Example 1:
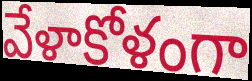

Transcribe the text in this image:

వేళాకోళంగా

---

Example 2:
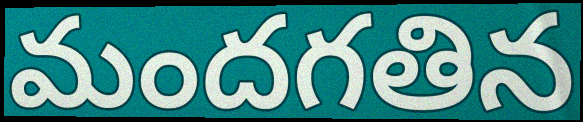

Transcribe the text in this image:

మందగతిన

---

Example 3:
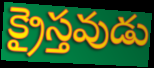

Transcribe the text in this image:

క్రైస్తవుడు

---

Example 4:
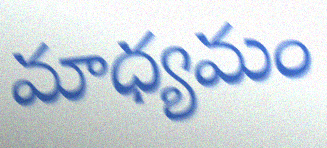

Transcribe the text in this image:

మాధ్యమం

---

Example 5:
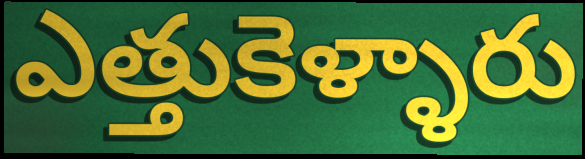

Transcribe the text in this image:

ఎత్తుకెళ్ళారు